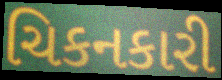
ચિકનકારી